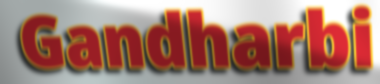
Gandharbi